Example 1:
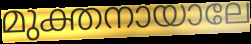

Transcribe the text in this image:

മുക്തനായാലേ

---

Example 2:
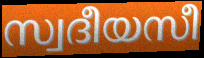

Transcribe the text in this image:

സ്വദീയസീ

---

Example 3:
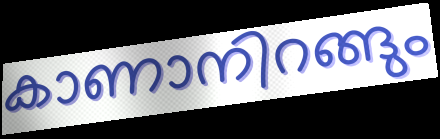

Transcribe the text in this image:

കാണാനിറങ്ങും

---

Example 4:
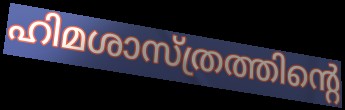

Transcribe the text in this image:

ഹിമശാസ്ത്രത്തിന്റെ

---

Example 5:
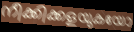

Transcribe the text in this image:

നീക്കിക്കളയുകയോ